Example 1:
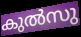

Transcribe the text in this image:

കുൽസു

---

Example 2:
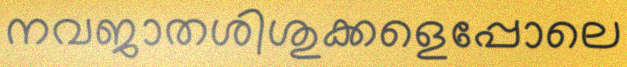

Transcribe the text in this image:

നവജാതശിശുക്കളെപ്പോലെ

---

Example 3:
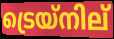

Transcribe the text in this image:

ട്രെയ്നില്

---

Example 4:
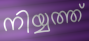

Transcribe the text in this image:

നിയ്യത്ത്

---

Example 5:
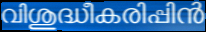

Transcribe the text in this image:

വിശുദ്ധീകരിപ്പിൻ